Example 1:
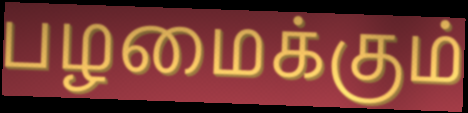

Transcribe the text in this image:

பழமைக்கும்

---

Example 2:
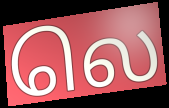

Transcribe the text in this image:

லெ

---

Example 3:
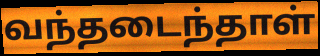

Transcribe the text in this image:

வந்தடைந்தாள்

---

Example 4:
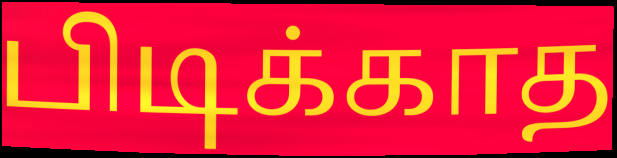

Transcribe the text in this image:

பிடிக்காத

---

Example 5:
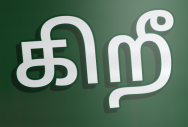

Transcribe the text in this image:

கிறீ